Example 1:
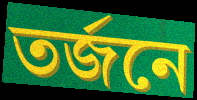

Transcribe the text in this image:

তর্জনে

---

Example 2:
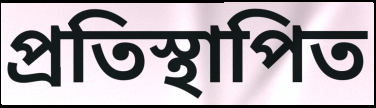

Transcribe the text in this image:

প্রতিস্থাপিত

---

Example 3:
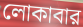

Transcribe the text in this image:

লোকাবার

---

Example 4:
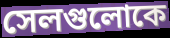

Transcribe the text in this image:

সেলগুলোকে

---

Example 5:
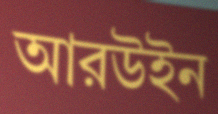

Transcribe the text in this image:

আরউইন